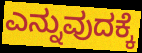
ಎನ್ನುವುದಕ್ಕೆ